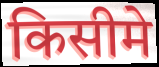
किसीमे